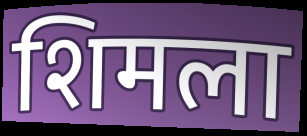
शिमला